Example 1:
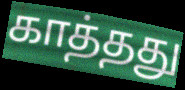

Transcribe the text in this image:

காத்தது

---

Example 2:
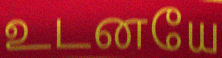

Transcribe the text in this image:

உடனயே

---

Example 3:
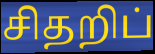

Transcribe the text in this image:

சிதறிப்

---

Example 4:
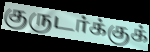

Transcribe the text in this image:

குருடர்க்குக்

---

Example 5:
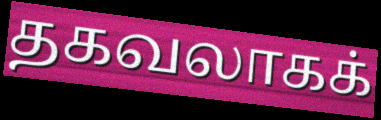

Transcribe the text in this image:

தகவலாகக்